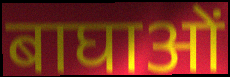
बाघाओं